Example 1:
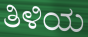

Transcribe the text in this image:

ತಿಳಿಯ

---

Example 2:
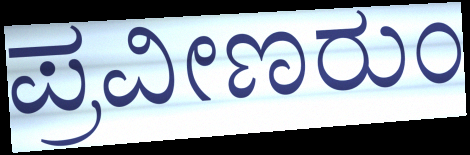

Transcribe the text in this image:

ಪ್ರವೀಣರುಂ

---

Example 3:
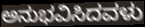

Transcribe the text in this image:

ಅನುಭವಿಸಿದವಳು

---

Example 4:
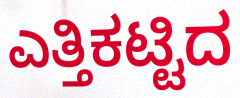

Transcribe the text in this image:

ಎತ್ತಿಕಟ್ಟಿದ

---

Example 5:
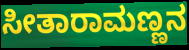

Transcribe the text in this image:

ಸೀತಾರಾಮಣ್ಣನ